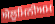
ਐਲੂਮਿਨੀਅਮ